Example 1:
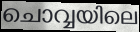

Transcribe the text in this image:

ചൊവ്വയിലെ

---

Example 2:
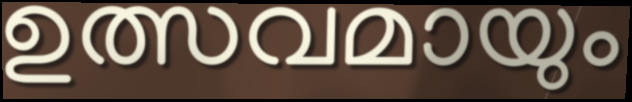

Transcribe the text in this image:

ഉത്സവമായും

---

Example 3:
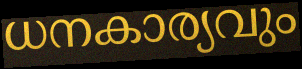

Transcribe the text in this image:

ധനകാര്യവും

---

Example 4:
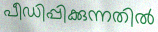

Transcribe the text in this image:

പീഡിപ്പിക്കുന്നതിൽ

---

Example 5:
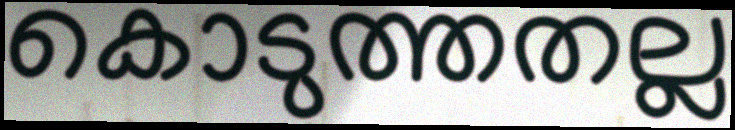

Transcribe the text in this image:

കൊടുത്തതല്ല